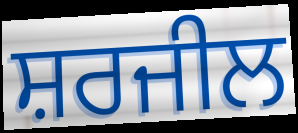
ਸ਼ਰਜੀਲ